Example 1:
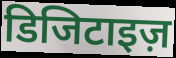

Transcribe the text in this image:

डिजिटाइज़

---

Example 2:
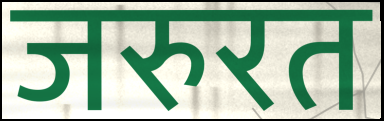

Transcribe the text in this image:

जरुरत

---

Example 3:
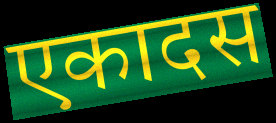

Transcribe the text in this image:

एकादस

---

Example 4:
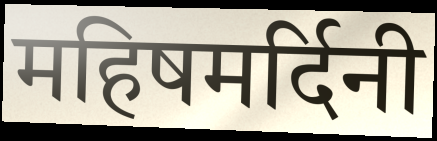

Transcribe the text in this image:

महिषमर्दिनी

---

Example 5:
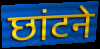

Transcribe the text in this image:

छांटने